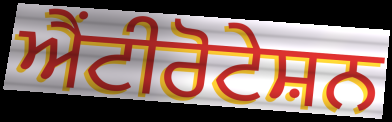
ਐਂਟੀਰੋਟੇਸ਼ਨ